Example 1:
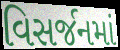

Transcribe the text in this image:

વિસર્જનમાં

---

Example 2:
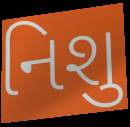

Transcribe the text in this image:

નિશુ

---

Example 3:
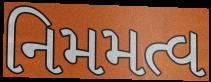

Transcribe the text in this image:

નિમમત્વ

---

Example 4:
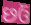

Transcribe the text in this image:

છઉં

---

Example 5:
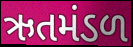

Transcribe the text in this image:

ઋતમંડળ